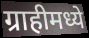
ग्राहीमध्ये